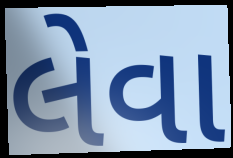
લેવા